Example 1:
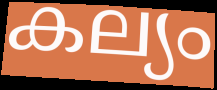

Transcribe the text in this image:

കല്യം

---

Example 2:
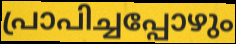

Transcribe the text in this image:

പ്രാപിച്ചപ്പോഴും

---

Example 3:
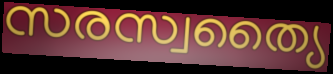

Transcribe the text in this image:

സരസ്വത്യൈ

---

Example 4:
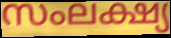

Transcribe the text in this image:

സംലക്ഷ്യ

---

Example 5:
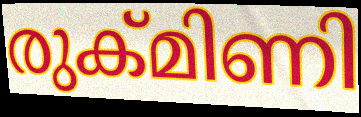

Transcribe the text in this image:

രുക്മിണി